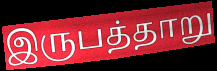
இருபத்தாறு